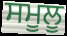
ਸਮੂਲੂ